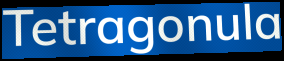
Tetragonula